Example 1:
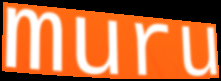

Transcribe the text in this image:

muru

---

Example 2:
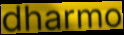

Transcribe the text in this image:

dharmo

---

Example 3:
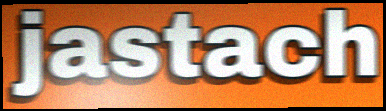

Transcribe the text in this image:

jastach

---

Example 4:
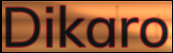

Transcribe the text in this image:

Dikaro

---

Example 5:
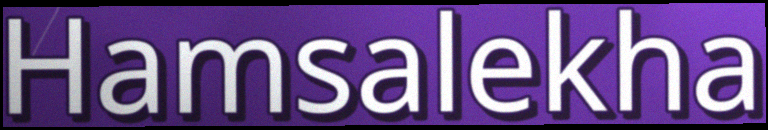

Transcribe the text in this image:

Hamsalekha